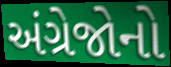
અંગ્રેજોનો